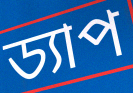
ড্যাপ